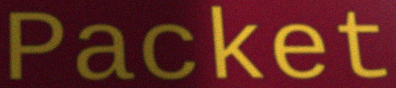
Packet